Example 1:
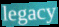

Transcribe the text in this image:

legacy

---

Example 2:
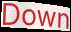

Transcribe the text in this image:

Down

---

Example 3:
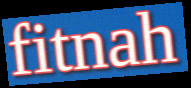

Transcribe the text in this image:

fitnah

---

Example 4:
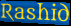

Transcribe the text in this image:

Rashid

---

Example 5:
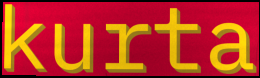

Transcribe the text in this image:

kurta